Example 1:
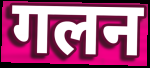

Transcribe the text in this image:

गलन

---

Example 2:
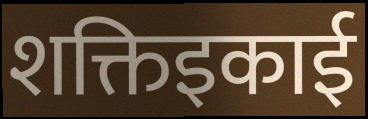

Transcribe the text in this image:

शक्तिइकाई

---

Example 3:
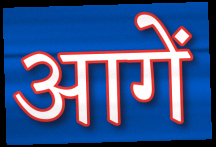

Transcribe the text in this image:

आगें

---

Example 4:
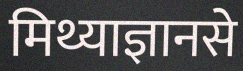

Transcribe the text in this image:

मिथ्याज्ञानसे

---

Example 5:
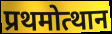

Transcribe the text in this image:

प्रथमोत्थान